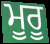
ਮੂਰੂ